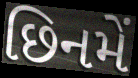
છિનમેં